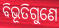
ବିଭୂତିଗୁଣେ